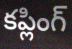
కప్లింగ్